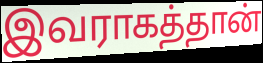
இவராகத்தான்